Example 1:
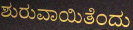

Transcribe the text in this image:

ಶುರುವಾಯಿತೆಂದು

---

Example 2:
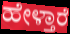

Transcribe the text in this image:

ಹೇಳ್ತಾರೆ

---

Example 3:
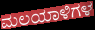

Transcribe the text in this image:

ಮಲಯಾಳಿಗಳ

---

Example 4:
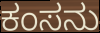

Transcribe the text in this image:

ಕಂಸನು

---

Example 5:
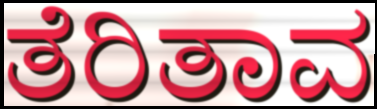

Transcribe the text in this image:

ತೆರಿತಾವ